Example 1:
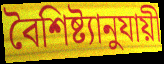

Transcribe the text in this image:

বৈশিষ্ট্যানুযায়ী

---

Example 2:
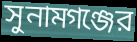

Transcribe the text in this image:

সুনামগঞ্জের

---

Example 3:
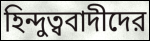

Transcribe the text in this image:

হিন্দুত্ববাদীদের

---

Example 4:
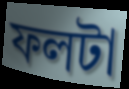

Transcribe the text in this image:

ফলটা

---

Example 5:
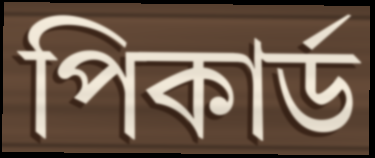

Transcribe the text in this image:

পিকার্ড